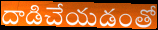
దాడిచేయడంతో